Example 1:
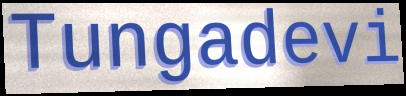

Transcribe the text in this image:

Tungadevi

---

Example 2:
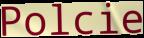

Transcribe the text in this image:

Polcie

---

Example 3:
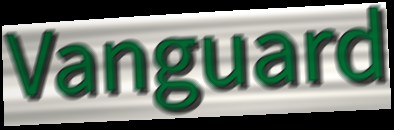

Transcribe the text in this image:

Vanguard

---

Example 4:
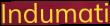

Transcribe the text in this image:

Indumati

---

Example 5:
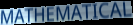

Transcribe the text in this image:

MATHEMATICAL